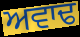
ਅਵਾਢ